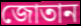
জোতান